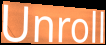
Unroll